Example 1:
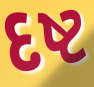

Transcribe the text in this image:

દષ્ટ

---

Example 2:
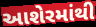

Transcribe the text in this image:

આશેરમાંથી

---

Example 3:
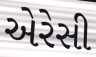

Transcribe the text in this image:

એરેસી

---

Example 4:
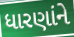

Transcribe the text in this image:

ધારણાંને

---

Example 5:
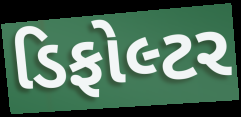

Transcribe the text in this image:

ડિફોલ્ટર